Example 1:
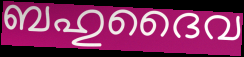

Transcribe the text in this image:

ബഹുദൈവ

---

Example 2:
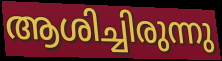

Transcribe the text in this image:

ആശിച്ചിരുന്നു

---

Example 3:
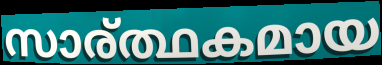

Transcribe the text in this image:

സാര്ത്ഥകമായ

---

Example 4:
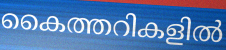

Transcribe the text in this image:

കൈത്തറികളിൽ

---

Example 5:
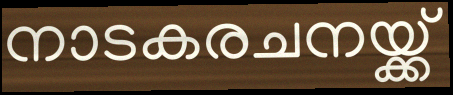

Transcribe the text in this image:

നാടകരചനയ്ക്ക്